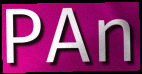
PAn